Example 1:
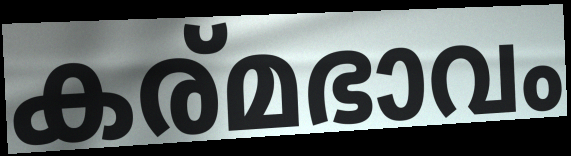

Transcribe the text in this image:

കര്മഭാവം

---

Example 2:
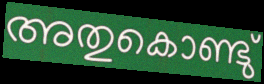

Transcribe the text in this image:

അതുകൊണ്ടു്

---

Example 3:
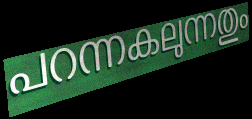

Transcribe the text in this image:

പറന്നകലുന്നതും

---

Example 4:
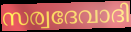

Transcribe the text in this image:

സര്വദേവാദി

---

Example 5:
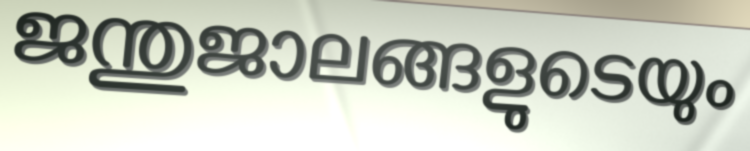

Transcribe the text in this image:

ജന്തുജാലങ്ങളുടെയും